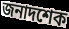
জনাদশেক